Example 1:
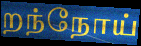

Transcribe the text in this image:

றந்நோய்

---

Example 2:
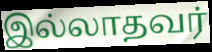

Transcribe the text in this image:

இல்லாதவர்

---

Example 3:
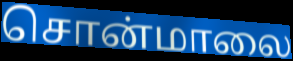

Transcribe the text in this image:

சொன்மாலை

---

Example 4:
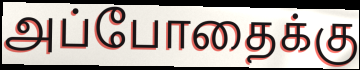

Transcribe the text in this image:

அப்போதைக்கு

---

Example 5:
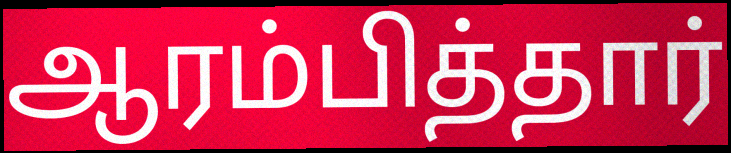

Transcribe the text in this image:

ஆரம்பித்தார்